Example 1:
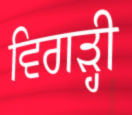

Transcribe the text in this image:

ਵਿਗੜ੍ਹੀ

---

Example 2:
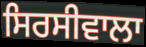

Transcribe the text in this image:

ਸਿਰਸੀਵਾਲਾ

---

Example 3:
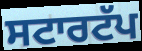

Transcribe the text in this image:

ਸਟਾਰਟੱਪ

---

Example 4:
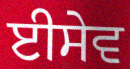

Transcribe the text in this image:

ਈਸੇਵ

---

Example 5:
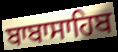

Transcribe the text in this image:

ਬਾਬਾਸਾਹਿਬ